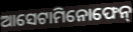
ଆସେଟାମିନୋଫେନ୍